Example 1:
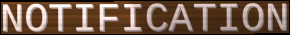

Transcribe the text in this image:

NOTIFICATION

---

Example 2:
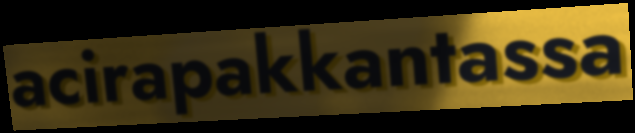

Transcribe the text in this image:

acirapakkantassa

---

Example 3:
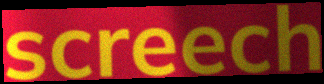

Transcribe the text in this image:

screech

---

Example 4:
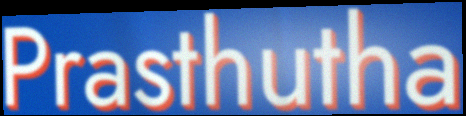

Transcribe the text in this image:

Prasthutha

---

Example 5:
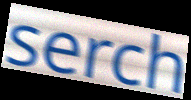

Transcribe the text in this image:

serch